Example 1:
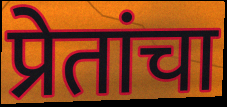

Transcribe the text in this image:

प्रेतांचा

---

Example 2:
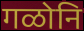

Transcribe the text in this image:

गळोनि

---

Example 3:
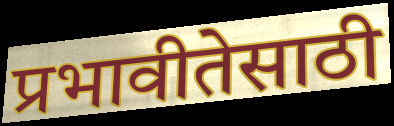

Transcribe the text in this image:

प्रभावीतेसाठी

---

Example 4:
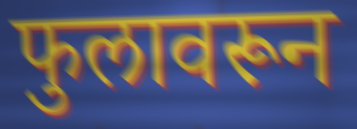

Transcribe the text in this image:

फुलावरून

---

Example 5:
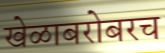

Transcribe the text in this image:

खेळाबरोबरच